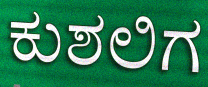
ಕುಶಲಿಗ